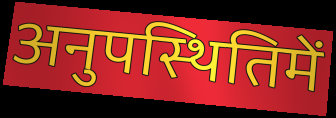
अनुपस्थितिमें